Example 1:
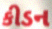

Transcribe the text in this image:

કીડન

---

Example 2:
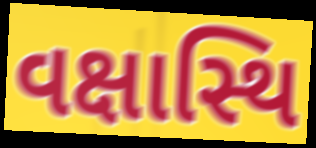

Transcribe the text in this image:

વક્ષાસ્થિ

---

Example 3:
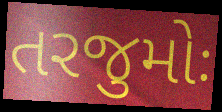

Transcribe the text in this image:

તરજુમોઃ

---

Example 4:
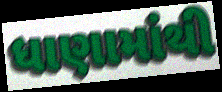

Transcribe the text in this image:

ધાણામાંથી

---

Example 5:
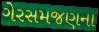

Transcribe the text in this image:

ગેરસમજણના